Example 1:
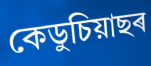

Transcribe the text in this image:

কেডুচিয়াছৰ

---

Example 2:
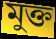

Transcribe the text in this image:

মুক্ত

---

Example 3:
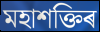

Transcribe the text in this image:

মহাশক্তিৰ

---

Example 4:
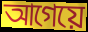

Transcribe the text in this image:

আগেয়ে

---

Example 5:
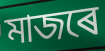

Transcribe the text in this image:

মাজৰে